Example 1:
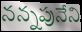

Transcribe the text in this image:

నన్నపునేని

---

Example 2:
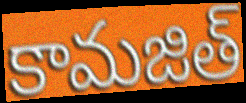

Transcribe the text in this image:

కామజిత్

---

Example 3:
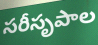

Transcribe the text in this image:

సరీసృపాల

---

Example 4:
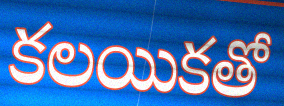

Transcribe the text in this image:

కలయికతో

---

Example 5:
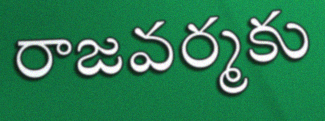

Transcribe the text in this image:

రాజవర్మకు